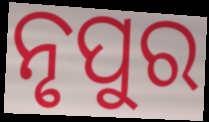
ନୃପୁର